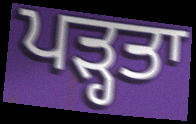
ਪੜ੍ਹਤਾ